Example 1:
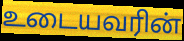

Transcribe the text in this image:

உடையவரின்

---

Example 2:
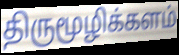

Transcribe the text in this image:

திருமூழிக்களம்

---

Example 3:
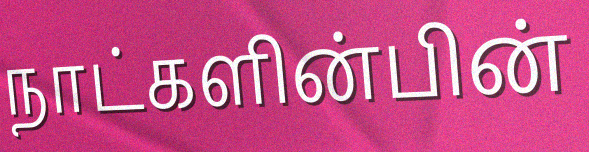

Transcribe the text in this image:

நாட்களின்பின்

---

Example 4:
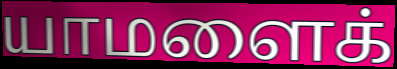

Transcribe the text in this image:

யாமளைக்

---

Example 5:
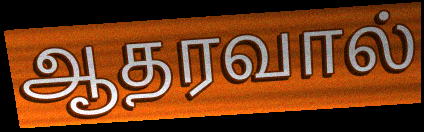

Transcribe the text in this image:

ஆதரவால்